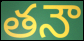
తనౌ